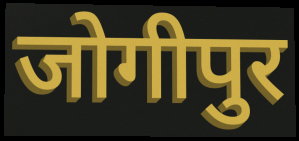
जोगीपुर